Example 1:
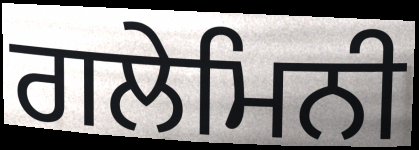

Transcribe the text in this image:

ਗਲੇਮਿਨੀ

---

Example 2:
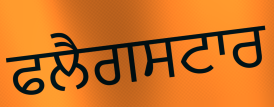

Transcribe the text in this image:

ਫਲੈਗਸਟਾਰ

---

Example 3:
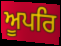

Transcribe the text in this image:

ਅੂਪਰਿ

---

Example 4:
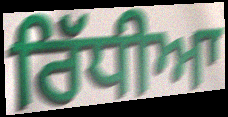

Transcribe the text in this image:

ਰਿੱਧੀਆ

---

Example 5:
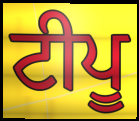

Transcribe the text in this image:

ਟੀਪੂ